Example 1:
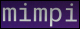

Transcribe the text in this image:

mimpi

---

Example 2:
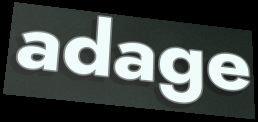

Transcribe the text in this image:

adage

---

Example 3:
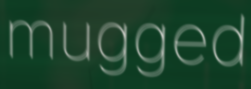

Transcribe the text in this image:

mugged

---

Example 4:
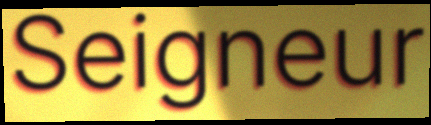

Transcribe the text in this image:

Seigneur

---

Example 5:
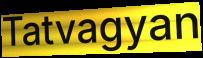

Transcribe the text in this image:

Tatvagyan